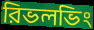
রিভলভিং